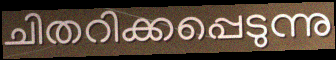
ചിതറിക്കപ്പെടുന്നു